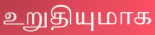
உறுதியுமாக